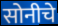
सोनीचे